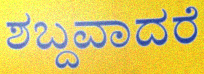
ಶಬ್ದವಾದರೆ